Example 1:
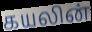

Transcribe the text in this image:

கயலின்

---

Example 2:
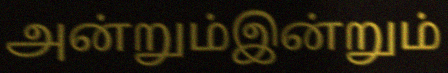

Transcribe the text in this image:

அன்றும்இன்றும்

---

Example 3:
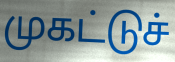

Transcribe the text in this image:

முகட்டுச்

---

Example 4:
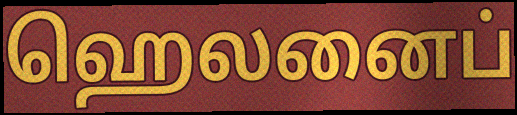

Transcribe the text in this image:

ஹெலனைப்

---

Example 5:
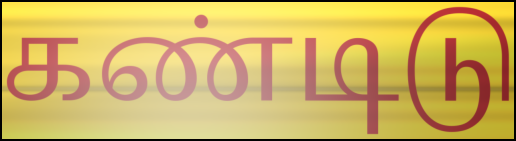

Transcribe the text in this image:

கண்டிடு